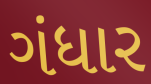
ગંધાર